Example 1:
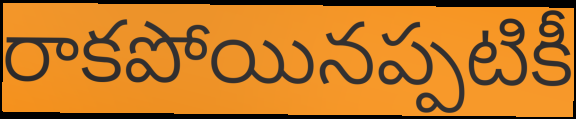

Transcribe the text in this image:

రాకపోయినప్పటికీ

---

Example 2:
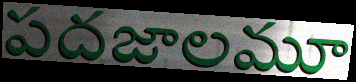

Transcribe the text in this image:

పదజాలమూ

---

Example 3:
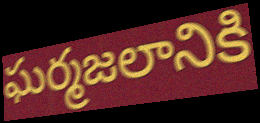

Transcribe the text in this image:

ఘర్మజలానికి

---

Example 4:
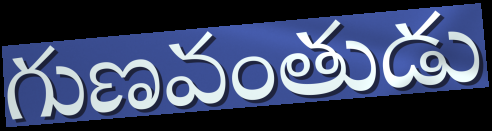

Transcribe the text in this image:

గుణవంతుడు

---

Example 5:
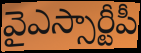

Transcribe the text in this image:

వైఎస్సార్టీపీ